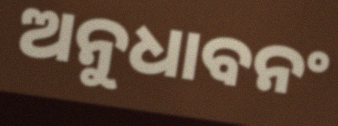
ଅନୁଧାବନଂ